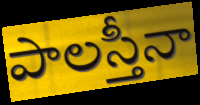
పాలస్తీనా